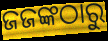
ଜଜଙ୍କଠାରୁ